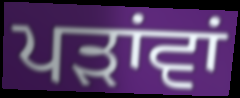
ਪੜਾਂਵਾਂ